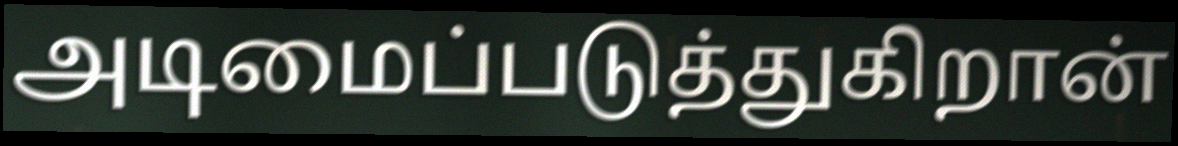
அடிமைப்படுத்துகிறான்